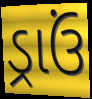
ડ્રાઉં